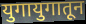
युगायुगातून